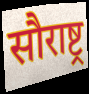
सौराष्ट्र